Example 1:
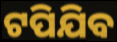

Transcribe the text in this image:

ଟପିଯିବ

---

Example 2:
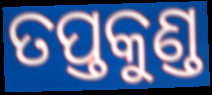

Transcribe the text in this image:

ତପ୍ତକୁଣ୍ଡ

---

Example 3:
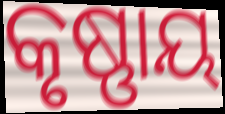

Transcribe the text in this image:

କୃଷ୍ଣାୟ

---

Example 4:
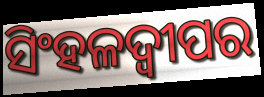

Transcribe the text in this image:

ସିଂହଳଦ୍ୱୀପର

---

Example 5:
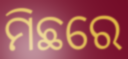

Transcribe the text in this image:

ମିଛରେ